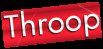
Throop